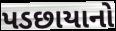
પડછાયાનો